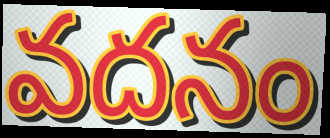
వదనం